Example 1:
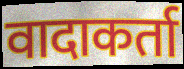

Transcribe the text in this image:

वादाकर्ता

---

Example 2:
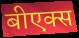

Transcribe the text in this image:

बीएक्स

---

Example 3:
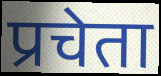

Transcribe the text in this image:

प्रचेता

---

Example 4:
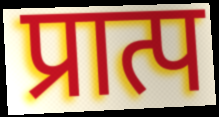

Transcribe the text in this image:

प्रात्प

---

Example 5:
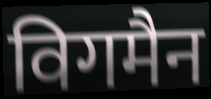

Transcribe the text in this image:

विगमैन